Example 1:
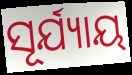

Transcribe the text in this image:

ସୂର୍ଯ୍ୟାୟ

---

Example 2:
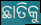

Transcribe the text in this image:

ଛାତିକୁ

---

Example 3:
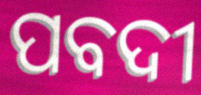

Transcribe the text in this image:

ପବଦୀ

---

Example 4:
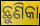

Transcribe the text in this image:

ଛୁଣିକା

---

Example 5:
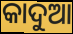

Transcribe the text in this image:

କାଦୁଆ